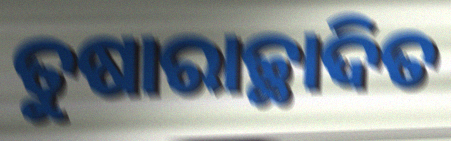
ତୁଷାରାଚ୍ଛାଦିତ